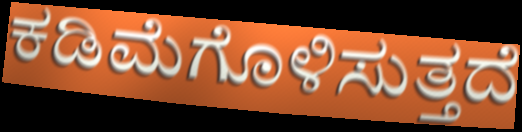
ಕಡಿಮೆಗೊಳಿಸುತ್ತದೆ